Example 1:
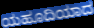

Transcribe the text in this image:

ಯಹೂದಿಯಾದ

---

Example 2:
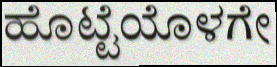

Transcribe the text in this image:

ಹೊಟ್ಟೆಯೊಳಗೇ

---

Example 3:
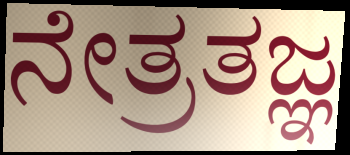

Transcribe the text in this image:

ನೇತ್ರತಜ್ಞ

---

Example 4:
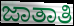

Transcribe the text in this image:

ಜಾತಾತಿ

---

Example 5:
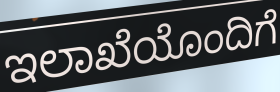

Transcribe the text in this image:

ಇಲಾಖೆಯೊಂದಿಗೆ